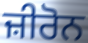
ਜ਼ੀਰੋਨ